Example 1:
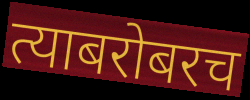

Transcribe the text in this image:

त्याबरोबरच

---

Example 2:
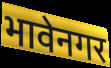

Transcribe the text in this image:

भावेनगर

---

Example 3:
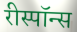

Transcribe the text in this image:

रीस्पॉन्स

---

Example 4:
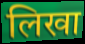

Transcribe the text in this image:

लिखा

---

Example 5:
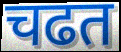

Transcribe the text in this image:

चढत